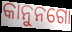
କାନୁନଗୋ